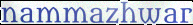
nammazhwar